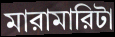
মারামারিটা